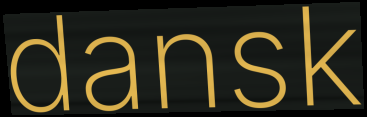
dansk